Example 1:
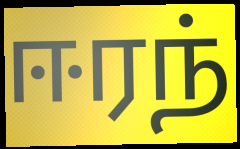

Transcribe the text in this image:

ஈரந்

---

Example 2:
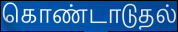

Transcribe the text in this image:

கொண்டாடுதல்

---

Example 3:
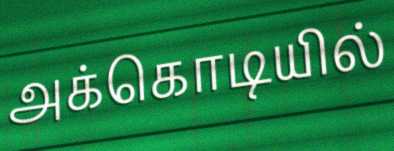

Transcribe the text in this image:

அக்கொடியில்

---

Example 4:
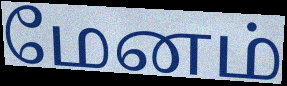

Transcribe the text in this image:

மேனம்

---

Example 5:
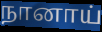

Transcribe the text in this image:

நானாய்